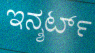
ಇನ್ಶರ್ಟ್